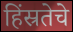
हिंस्रतेचे